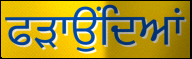
ਫੜਾਉਂਦਿਆਂ